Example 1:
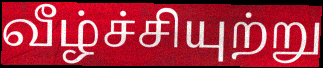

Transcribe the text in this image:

வீழ்ச்சியுற்று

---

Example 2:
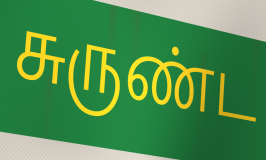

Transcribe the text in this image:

சுருண்ட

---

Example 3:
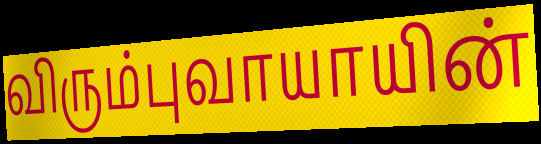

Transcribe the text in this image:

விரும்புவாயாயின்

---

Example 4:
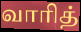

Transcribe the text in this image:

வாரித்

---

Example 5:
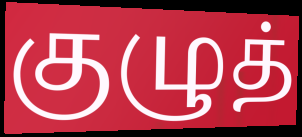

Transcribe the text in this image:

குழுத்